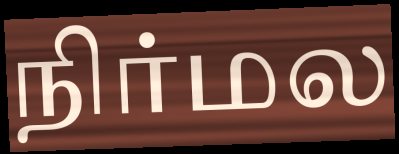
நிர்மல